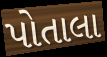
પોતાલા